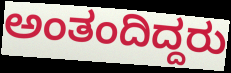
ಅಂತಂದಿದ್ದರು